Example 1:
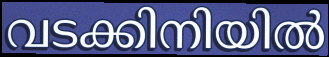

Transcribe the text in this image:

വടക്കിനിയിൽ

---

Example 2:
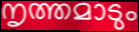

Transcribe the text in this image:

നൃത്തമാടും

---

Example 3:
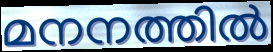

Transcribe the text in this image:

മനനത്തിൽ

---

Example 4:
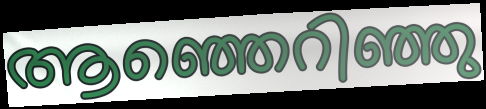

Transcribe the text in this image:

ആഞ്ഞെറിഞ്ഞു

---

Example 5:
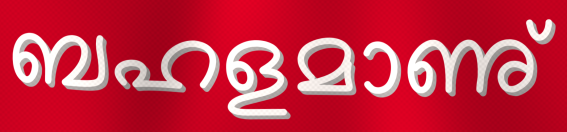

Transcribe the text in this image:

ബഹളമാണു്